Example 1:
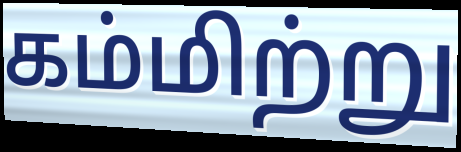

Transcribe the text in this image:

கம்மிற்று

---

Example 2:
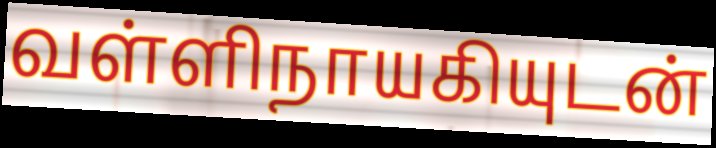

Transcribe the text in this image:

வள்ளிநாயகியுடன்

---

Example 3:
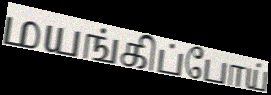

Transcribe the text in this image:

மயங்கிப்போய்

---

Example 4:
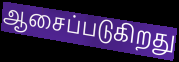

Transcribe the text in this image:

ஆசைப்படுகிறது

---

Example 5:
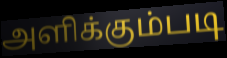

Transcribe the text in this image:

அளிக்கும்படி